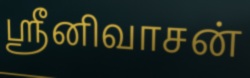
ஸ்ரீனிவாசன்